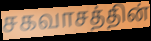
சகவாசத்தின்